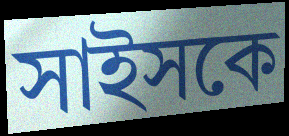
সাইসকে